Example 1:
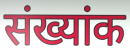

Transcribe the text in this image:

संख्यांक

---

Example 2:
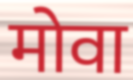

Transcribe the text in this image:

मोवा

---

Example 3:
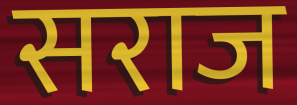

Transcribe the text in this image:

सराज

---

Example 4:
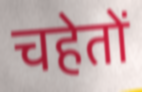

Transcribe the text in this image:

चहेतों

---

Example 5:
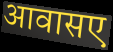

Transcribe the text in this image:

आवासए